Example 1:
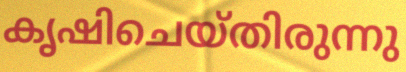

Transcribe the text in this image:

കൃഷിചെയ്തിരുന്നു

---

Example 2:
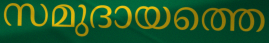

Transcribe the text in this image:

സമുദായത്തെ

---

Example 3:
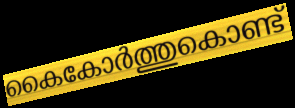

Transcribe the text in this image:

കൈകോർത്തുകൊണ്ട്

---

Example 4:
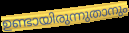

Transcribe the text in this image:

ഉണ്ടായിരുന്നുതാനും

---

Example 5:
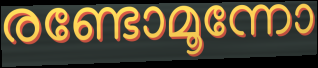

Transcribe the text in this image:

രണ്ടോമൂന്നോ